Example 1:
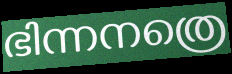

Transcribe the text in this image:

ഭിന്നനത്രെ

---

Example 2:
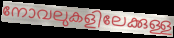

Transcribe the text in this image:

നോവലുകളിലേക്കുള്ള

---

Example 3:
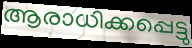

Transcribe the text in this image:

ആരാധിക്കപ്പെട്ടു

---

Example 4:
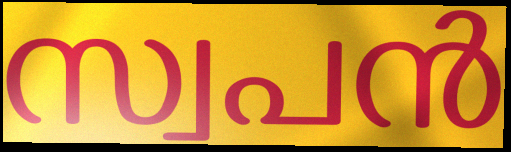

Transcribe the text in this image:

സ്വപൻ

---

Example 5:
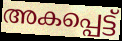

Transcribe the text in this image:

അകപ്പെട്ട്